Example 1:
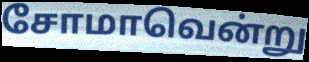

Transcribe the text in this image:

சோமாவென்று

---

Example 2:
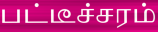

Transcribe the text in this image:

பட்டீச்சரம்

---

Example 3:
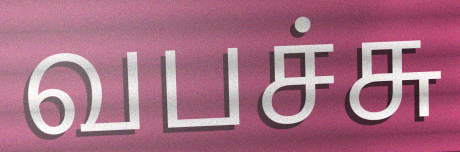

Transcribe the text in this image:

வபச்சு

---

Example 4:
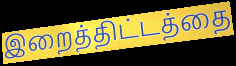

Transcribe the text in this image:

இறைத்திட்டத்தை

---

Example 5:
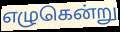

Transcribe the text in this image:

எழுகென்று